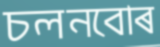
চলনবোৰ